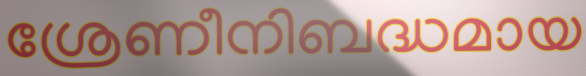
ശ്രേണീനിബദ്ധമായ